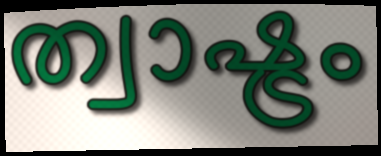
ത്വാഷ്ട്രം